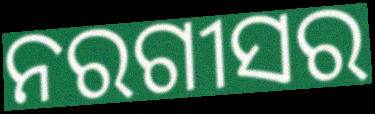
ନରଗୀସର